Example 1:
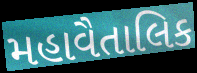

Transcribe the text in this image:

મહાવૈતાલિક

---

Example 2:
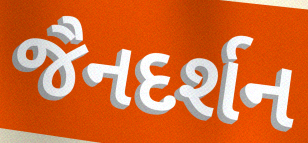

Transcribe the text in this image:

જૈનદર્શન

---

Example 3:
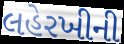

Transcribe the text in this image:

લહેરખીની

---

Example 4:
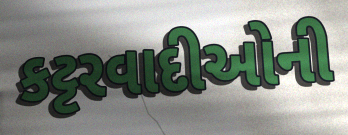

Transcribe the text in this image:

કટ્ટરવાદીઓની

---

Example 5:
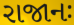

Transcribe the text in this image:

રાજાનઃ